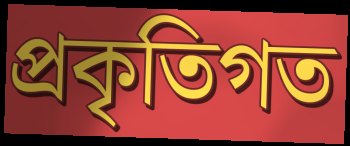
প্রকৃতিগত